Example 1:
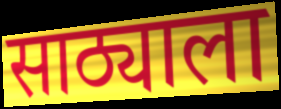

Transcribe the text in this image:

साठ्याला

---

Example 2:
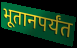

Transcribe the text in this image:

भूतानपर्यंत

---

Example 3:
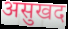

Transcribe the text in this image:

असुखद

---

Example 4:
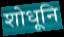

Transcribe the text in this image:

शोधूनि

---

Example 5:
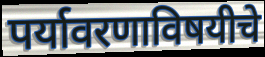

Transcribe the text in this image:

पर्यावरणाविषयीचे